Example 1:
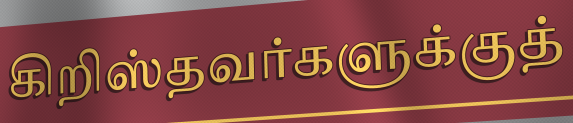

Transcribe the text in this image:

கிறிஸ்தவர்களுக்குத்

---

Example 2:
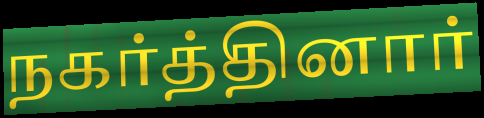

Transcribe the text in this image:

நகர்த்தினார்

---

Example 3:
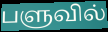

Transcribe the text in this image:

பளுவில்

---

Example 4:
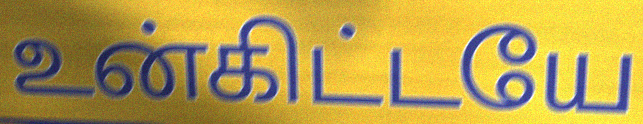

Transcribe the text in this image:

உன்கிட்டயே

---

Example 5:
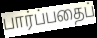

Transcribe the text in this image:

பார்ப்பதைப்